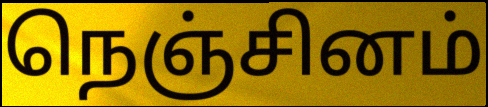
நெஞ்சினம்